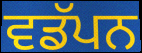
ਵਡੱਪਨ